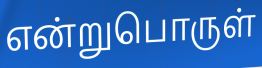
என்றுபொருள்